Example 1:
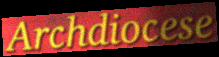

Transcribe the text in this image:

Archdiocese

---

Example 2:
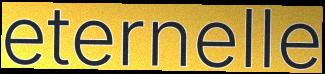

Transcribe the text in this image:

eternelle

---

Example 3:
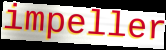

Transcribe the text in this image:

impeller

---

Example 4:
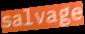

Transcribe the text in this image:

salvage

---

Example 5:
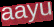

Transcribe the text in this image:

aayu